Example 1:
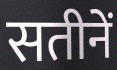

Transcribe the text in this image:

सतीनें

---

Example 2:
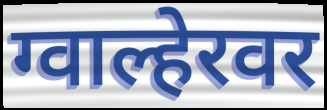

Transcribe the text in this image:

ग्वाल्हेरवर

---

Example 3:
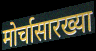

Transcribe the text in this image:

मोर्चासारख्या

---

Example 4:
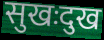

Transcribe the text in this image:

सुखःदुख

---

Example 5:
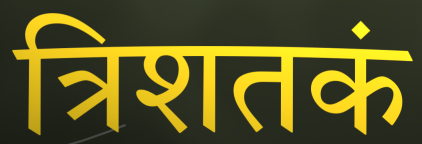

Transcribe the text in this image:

त्रिशतकं